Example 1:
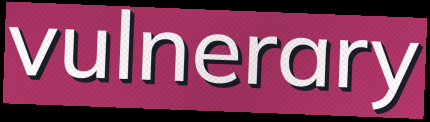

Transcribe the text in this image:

vulnerary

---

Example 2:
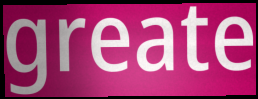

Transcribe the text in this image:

greate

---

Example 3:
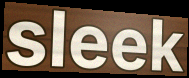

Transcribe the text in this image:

sleek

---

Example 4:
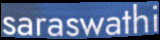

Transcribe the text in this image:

saraswathi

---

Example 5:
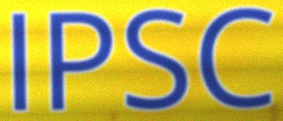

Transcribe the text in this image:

IPSC